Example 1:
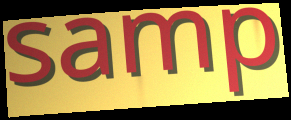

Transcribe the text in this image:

samp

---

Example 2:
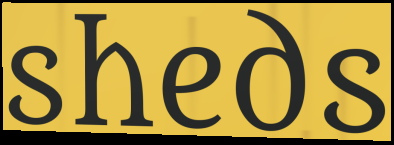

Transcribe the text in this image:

sheds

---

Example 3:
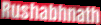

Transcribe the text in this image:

Rushabhnath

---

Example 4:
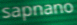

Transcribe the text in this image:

sapnano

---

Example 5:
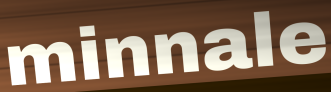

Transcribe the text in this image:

minnale